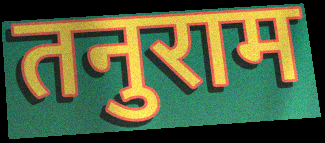
तनुराम